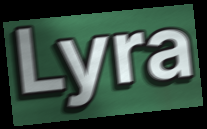
Lyra